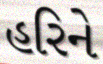
હરિને